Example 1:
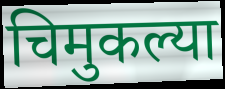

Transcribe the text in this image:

चिमुकल्या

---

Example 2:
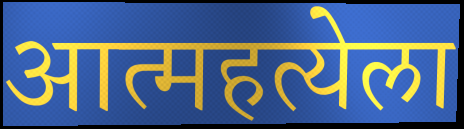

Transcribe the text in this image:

आत्महत्येला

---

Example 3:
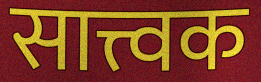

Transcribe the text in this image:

सात्त्वक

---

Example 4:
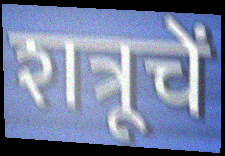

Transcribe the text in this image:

शत्रूचें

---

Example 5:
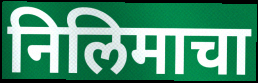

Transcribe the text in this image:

निलिमाचा